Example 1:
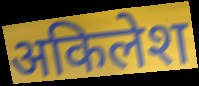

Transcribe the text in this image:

अकिलेश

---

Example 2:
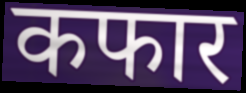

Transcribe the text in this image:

कफार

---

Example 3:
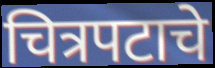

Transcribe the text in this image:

चित्रपटाचे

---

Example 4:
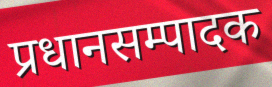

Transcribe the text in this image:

प्रधानसम्पादक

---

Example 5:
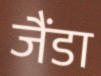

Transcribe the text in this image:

जैंडा